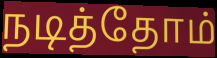
நடித்தோம்